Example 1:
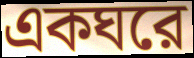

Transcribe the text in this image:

একঘরে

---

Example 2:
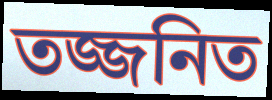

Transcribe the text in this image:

তজ্জনিত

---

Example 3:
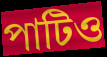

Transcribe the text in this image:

পাটিও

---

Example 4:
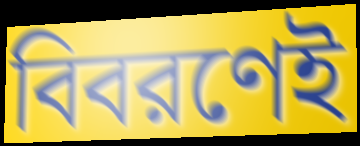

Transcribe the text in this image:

বিবরণেই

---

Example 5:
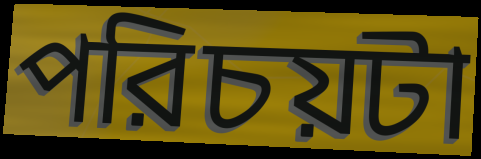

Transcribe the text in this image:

পরিচয়টা